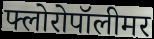
फ्लोरोपॉलीमर